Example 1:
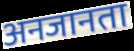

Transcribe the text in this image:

अनजानता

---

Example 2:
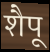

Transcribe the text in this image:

शैपू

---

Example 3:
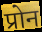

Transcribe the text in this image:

प्रोन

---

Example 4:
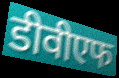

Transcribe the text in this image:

डीवीएफ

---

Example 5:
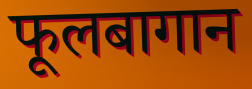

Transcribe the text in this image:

फूलबागान